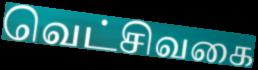
வெட்சிவகை